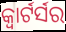
କ୍ବାର୍ଟର୍ସର